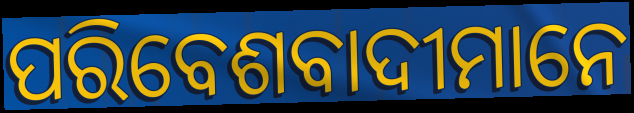
ପରିବେଶବାଦୀମାନେ